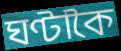
ঘণ্টাকৈ